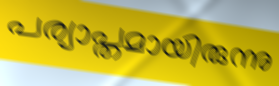
പര്യാപ്തമായിരുന്നു